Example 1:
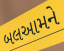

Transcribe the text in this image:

બલઆમને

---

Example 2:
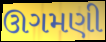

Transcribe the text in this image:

ઊગમણી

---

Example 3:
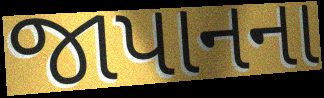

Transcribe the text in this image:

જાપાનના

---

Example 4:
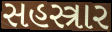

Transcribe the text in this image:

સહસ્ત્રાર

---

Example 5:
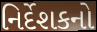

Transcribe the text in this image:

નિર્દેશકનો